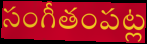
సంగీతంపట్ల